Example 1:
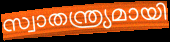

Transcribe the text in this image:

സ്വാതന്ത്ര്യമായി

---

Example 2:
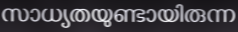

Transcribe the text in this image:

സാധ്യതയുണ്ടായിരുന്ന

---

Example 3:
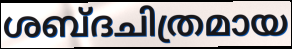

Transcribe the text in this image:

ശബ്ദചിത്രമായ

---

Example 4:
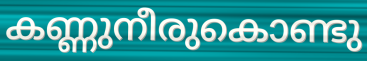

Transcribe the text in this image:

കണ്ണുനീരുകൊണ്ടു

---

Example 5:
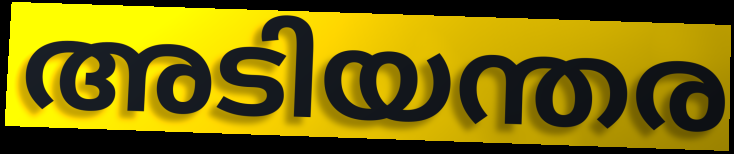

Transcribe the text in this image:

അടിയന്തര